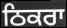
ਠਿਕਰਾ